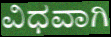
ವಿಧವಾಗಿ